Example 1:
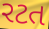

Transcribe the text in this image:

રટત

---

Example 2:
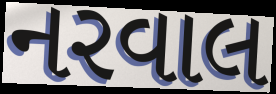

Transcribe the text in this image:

નરવાલ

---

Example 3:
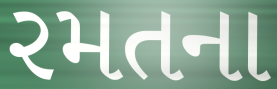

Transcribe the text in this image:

રમતના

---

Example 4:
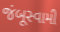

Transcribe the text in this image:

જંબૂસ્વામી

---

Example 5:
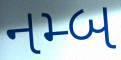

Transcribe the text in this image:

નમ્બ